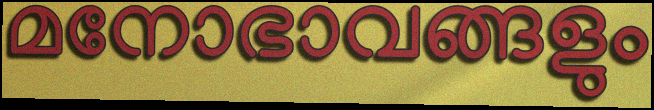
മനോഭാവങ്ങളും